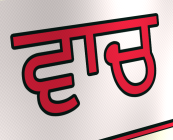
ਵਾਚ